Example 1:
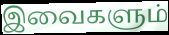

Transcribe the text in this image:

இவைகளும்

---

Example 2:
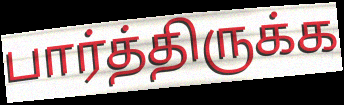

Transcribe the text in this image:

பார்த்திருக்க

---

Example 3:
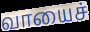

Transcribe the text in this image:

வாயைச்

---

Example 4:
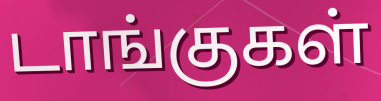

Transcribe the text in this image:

டாங்குகள்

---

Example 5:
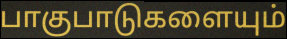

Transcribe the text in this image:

பாகுபாடுகளையும்